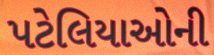
પટેલિયાઓની